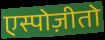
एस्पोज़ीतो